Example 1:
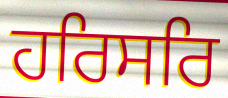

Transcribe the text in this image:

ਹਰਿਸਰਿ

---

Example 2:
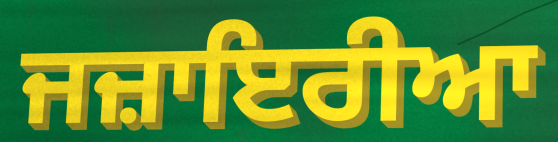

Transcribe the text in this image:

ਜਜ਼ਾਇਰੀਆ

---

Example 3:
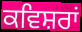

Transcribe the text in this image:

ਕਵਿਸ਼ਰਾਂ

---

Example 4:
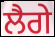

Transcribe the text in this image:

ਲੈਗੇ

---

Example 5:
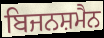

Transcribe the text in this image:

ਬਿਜਨਸ਼ਮੈਨ